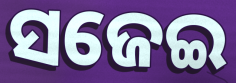
ସଜେଇ